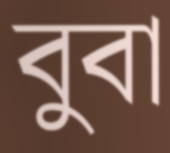
বুবা